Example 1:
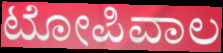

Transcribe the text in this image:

ಟೋಪಿವಾಲ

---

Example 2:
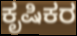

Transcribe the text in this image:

ಕೃಷಿಕರ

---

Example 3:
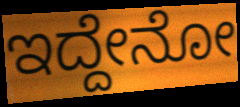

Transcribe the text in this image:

ಇದ್ದೇನೋ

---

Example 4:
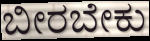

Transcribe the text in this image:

ಬೀರಬೇಕು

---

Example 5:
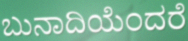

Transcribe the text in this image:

ಬುನಾದಿಯೆಂದರೆ